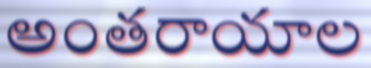
అంతరాయాల